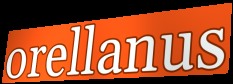
orellanus